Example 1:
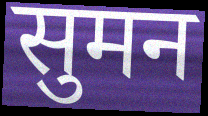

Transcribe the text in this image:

सुमन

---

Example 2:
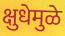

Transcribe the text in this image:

क्षुधेमुळे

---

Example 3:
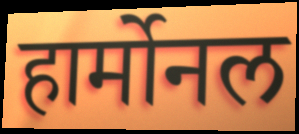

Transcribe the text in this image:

हार्मोनल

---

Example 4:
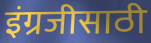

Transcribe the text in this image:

इंग्रजीसाठी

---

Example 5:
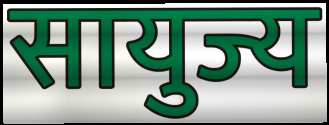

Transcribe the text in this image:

सायुज्य